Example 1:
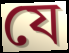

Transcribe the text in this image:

যে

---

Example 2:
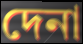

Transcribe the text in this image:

দেনা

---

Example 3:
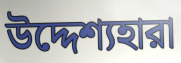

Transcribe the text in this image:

উদ্দেশ্যহারা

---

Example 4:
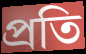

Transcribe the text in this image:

প্রতি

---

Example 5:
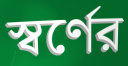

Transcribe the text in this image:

স্বর্ণের